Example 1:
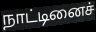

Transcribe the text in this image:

நாட்டினைச்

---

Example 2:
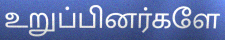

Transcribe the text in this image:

உறுப்பினர்களே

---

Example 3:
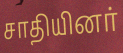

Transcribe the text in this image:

சாதியினர்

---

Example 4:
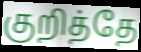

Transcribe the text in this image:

குறித்தே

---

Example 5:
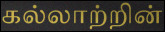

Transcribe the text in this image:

கல்லாற்றின்